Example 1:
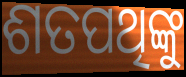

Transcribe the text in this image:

ଶତପଥିଙ୍କୁ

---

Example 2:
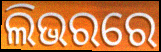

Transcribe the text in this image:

ଲିଭରରେ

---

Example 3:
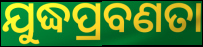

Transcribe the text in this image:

ଯୁଦ୍ଧପ୍ରବଣତା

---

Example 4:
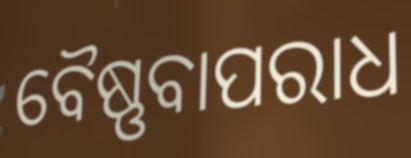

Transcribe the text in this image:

ବୈଷ୍ଣବାପରାଧ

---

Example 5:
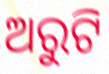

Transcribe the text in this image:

ଅରୁଟି